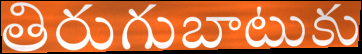
తిరుగుబాటుకు